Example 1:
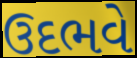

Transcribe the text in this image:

ઉદભવે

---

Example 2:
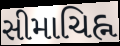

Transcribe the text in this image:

સીમાચિહ્ન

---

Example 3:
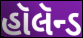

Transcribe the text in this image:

હૉલૅન્ડ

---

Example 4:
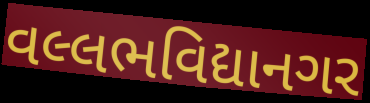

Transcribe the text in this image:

વલ્લભવિદ્યાનગર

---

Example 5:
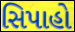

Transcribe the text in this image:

સિપાહો